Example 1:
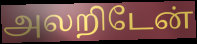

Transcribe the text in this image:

அலறிடேன்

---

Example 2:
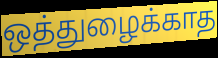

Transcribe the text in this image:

ஒத்துழைக்காத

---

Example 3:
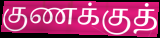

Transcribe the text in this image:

குணக்குத்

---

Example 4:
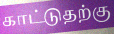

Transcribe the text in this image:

காட்டுதற்கு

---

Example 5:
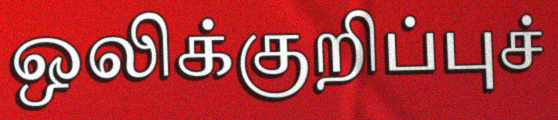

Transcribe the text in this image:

ஒலிக்குறிப்புச்